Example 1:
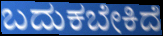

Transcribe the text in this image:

ಬದುಕಬೇಕಿದೆ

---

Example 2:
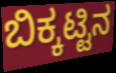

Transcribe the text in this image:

ಬಿಕ್ಕಟ್ಟಿನ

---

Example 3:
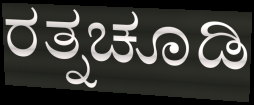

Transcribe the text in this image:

ರತ್ನಚೂಡಿ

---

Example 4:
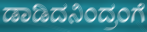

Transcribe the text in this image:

ಡಾಡಿದನಿಂದ್ರಂಗೆ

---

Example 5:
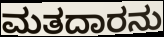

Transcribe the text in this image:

ಮತದಾರನು